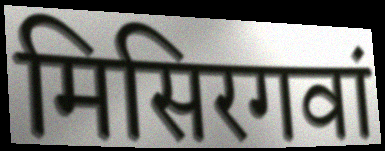
मिसिरगवां